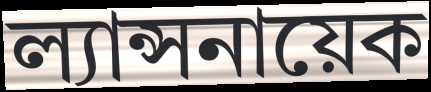
ল্যান্সনায়েক